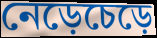
নেড়েচেড়ে